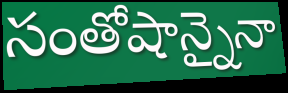
సంతోషాన్నైనా